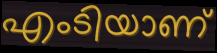
എംടിയാണ്